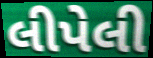
લીપેલી